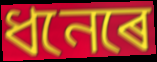
ধনেৰে